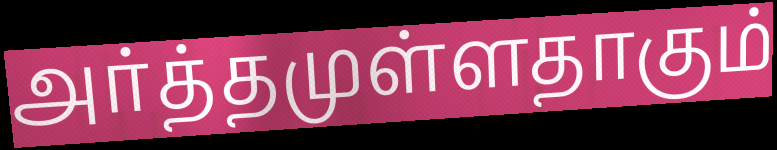
அர்த்தமுள்ளதாகும்